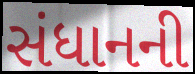
સંધાનની